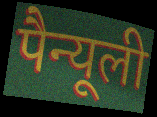
पैन्यूली